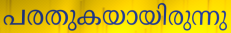
പരതുകയായിരുന്നു